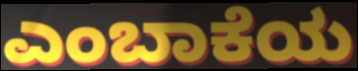
ಎಂಬಾಕೆಯ